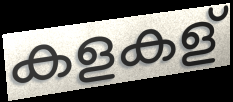
കളകള്